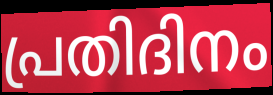
പ്രതിദിനം